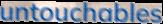
untouchables